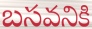
బసవనికి